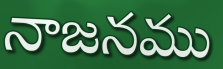
నాజనము